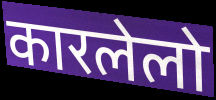
कारलेलो